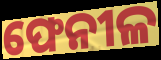
ଫେନୀଳ